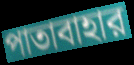
পাতাবাহার